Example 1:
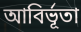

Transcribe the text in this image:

আবির্ভূতা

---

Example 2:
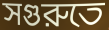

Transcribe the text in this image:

সগুরুতে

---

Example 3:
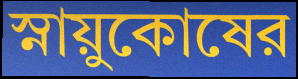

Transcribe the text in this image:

স্নায়ুকোষের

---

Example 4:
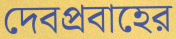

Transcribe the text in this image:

দেবপ্রবাহের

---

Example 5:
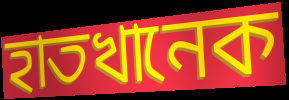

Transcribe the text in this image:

হাতখানেক